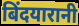
बिंदयारानी